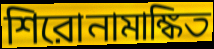
শিরোনামাঙ্কিত